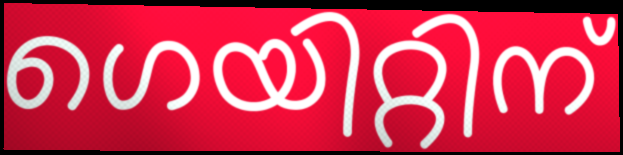
ഗെയിറ്റിന്